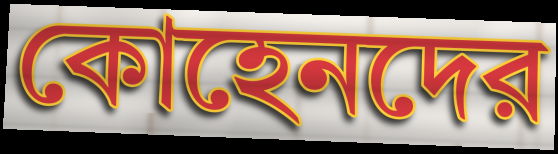
কোহেনদের